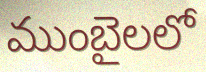
ముంబైలలో